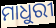
ମାଧୁରୀ